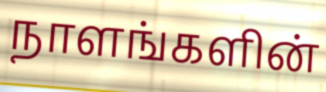
நாளங்களின்